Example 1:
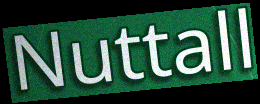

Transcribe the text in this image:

Nuttall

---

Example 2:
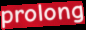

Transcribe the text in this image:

prolong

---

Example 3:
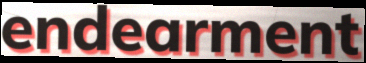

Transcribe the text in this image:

endearment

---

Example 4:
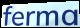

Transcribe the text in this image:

ferma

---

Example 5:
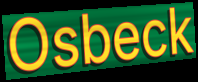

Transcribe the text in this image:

Osbeck